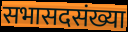
सभासदसंख्या